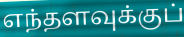
எந்தளவுக்குப்